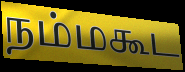
நம்மகூட